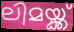
ലിമയ്ക്ക്